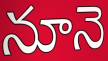
నూనె